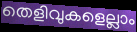
തെളിവുകളെല്ലാം